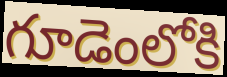
గూడెంలోకి